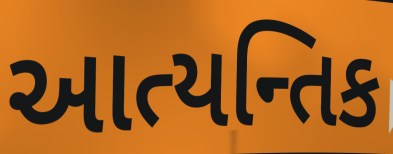
આત્યન્તિક